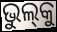
ଭୁଲ୍‍କୁ